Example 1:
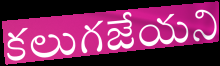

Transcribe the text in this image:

కలుగజేయని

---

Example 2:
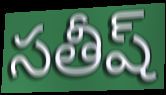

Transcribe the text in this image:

సతీష్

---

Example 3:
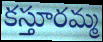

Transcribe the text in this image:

కస్తూరమ్మ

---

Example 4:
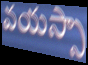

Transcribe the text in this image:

వయస్సా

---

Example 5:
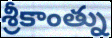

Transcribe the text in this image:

శ్రీకాంత్ను